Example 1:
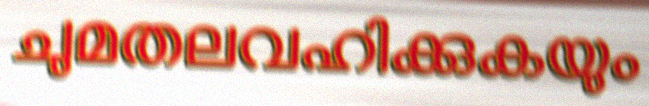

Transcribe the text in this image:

ചുമതലവഹിക്കുകയും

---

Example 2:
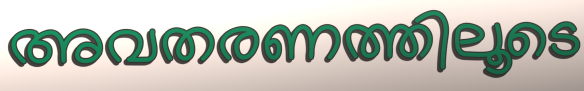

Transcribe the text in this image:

അവതരണത്തിലൂടെ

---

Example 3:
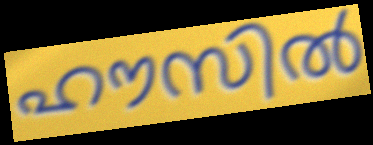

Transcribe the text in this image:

ഹൗസിൽ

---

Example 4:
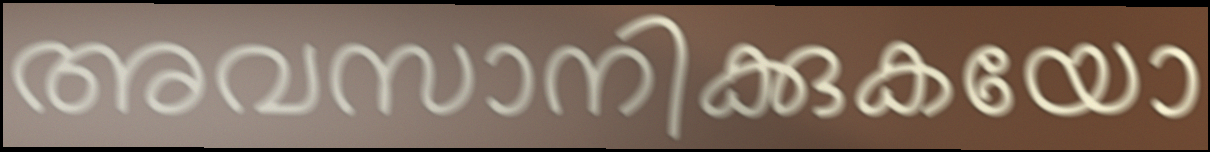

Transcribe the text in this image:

അവസാനിക്കുകയോ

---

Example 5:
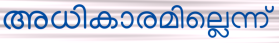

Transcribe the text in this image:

അധികാരമില്ലെന്ന്